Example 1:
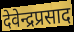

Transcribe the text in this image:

देवेन्द्रप्रसाद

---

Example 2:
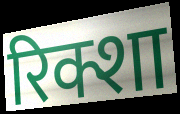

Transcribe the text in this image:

रिक्शा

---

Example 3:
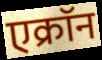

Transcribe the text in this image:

एक्रॉन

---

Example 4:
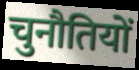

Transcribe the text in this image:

चुनौतियों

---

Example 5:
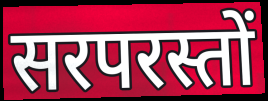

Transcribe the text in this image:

सरपरस्तों